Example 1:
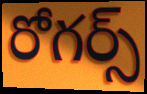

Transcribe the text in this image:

రోగర్స్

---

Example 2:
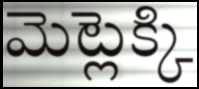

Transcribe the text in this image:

మెట్లెక్కి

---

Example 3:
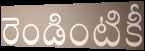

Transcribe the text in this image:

రెండింటికీ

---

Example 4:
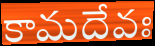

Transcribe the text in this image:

కామదేవః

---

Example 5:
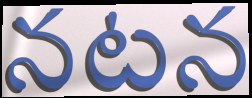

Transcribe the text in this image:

నటన